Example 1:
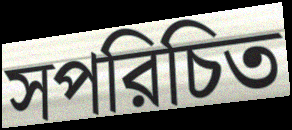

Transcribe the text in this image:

সপরিচিত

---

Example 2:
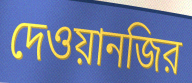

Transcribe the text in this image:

দেওয়ানজির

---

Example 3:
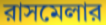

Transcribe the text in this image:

রাসমেলার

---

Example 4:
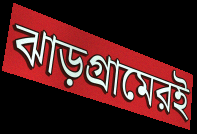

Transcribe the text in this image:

ঝাড়গ্রামেরই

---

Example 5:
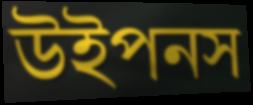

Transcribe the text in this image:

উইপনস